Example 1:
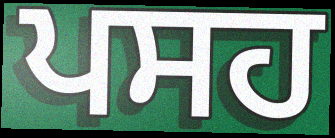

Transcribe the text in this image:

ਪਸਹ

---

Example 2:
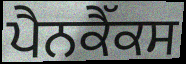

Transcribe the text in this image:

ਪੈਨਕੈੱਕਸ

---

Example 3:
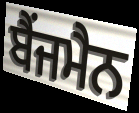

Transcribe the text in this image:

ਬੈਂਜਮੈਨ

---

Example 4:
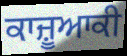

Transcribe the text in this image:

ਕਾਜ਼ੂਆਕੀ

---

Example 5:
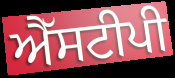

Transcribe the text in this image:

ਐੱਸਟੀਪੀ